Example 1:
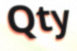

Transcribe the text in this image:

Qty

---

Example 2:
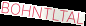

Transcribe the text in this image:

BOHNTLTAL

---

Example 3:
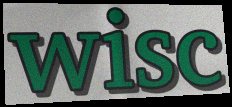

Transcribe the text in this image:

wisc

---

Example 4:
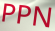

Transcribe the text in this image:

PPN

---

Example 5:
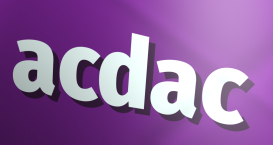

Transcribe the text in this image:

acdac